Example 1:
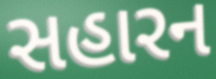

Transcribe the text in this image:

સહારન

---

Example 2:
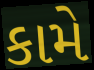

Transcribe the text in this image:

કામે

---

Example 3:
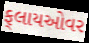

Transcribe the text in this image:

ફ્‌લાયઓવર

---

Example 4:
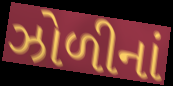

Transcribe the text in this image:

ઝોળીનાં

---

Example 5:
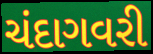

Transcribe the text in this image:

ચંદાગવરી